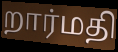
றார்மதி